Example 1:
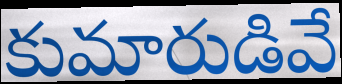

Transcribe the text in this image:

కుమారుడివే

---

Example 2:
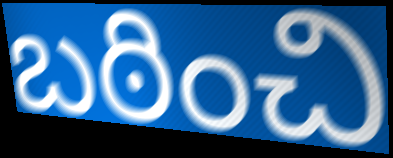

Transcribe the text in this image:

బఠించి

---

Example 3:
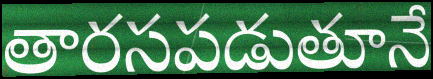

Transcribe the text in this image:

తారసపడుతూనే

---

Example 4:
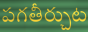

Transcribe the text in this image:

పగతీర్చుట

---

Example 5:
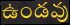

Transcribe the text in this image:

ఉండవు